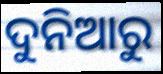
ଦୁନିଆରୁ